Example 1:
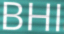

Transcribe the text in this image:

BHI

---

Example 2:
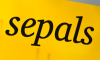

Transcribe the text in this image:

sepals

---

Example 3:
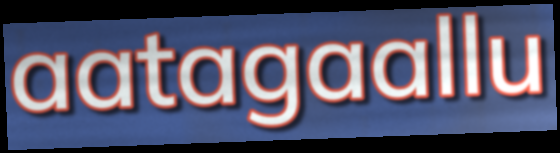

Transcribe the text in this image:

aatagaallu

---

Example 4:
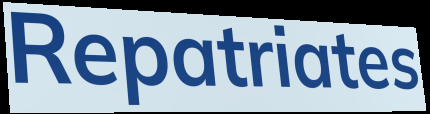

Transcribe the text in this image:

Repatriates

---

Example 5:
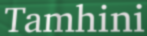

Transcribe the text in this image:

Tamhini